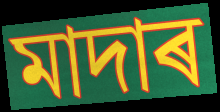
মাদাৰ